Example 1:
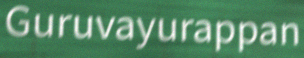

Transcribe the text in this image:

Guruvayurappan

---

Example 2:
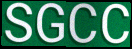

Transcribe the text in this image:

SGCC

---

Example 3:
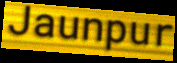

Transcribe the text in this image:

Jaunpur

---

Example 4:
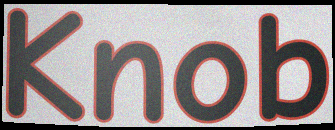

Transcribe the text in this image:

Knob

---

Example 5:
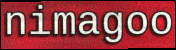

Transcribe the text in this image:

nimagoo